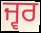
ਜ੍ਵਰ